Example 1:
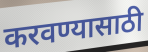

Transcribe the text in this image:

करवण्यासाठी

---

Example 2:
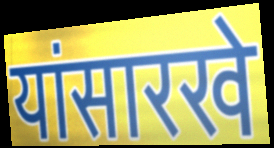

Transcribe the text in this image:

यांसारखे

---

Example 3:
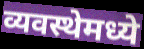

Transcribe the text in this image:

व्यवस्थेमध्ये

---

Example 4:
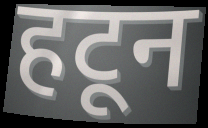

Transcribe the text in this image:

हटून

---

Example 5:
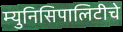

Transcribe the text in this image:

म्युनिसिपालिटीचे